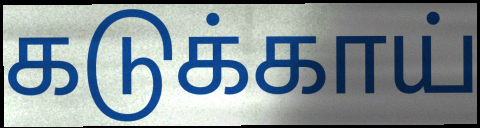
கடுக்காய்